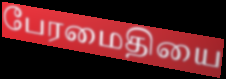
பேரமைதியை